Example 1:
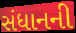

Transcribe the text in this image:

સંધાનની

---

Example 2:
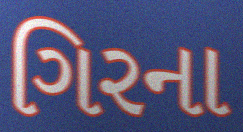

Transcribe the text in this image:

ગિરના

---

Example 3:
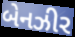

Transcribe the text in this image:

બેનઝીર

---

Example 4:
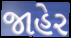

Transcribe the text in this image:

જાહેર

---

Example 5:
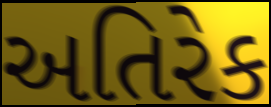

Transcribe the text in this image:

અતિરેક